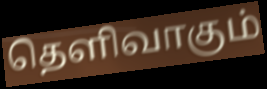
தெளிவாகும்